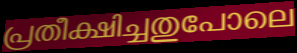
പ്രതീക്ഷിച്ചതുപോലെ